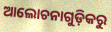
ଆଲୋଚନାଗୁଡ଼ିକରୁ